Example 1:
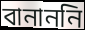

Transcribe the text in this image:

বানাননি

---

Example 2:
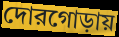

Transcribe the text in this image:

দোরগোড়ায়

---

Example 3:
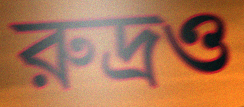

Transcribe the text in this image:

রুদ্রও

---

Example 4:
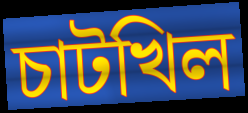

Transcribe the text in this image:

চাটখিল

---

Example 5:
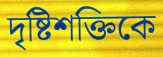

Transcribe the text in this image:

দৃষ্টিশক্তিকে